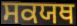
ਸਕਯਥ